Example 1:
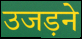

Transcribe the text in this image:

उजड़ने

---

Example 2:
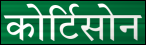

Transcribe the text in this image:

कोर्टिसोन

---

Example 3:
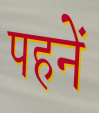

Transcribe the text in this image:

पहनें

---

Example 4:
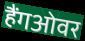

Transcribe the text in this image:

हैंगओवर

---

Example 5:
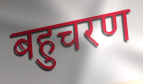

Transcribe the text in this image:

बहुचरण